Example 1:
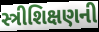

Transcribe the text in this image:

સ્ત્રીશિક્ષણની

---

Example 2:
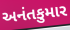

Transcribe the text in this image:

અનંતકુમાર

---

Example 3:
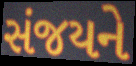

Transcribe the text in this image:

સંજયને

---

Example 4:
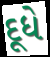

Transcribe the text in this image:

દૂધે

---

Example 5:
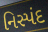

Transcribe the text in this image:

નિસ્પંદ